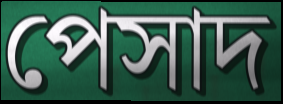
পেসাদ